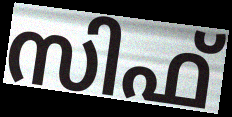
സിഫ്